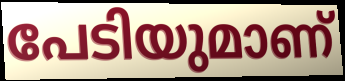
പേടിയുമാണ്